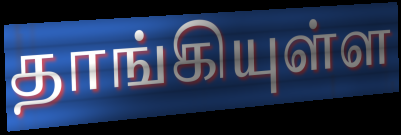
தாங்கியுள்ள